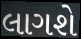
લાગશે